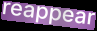
reappear